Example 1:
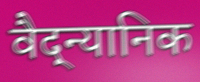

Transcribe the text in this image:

वैद्न्यानिक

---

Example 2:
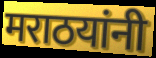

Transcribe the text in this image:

मराठयांनी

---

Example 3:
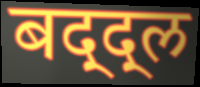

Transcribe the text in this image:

बद्द्ल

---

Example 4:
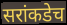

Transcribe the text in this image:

सरांकडेच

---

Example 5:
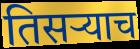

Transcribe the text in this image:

तिसर्‍याच